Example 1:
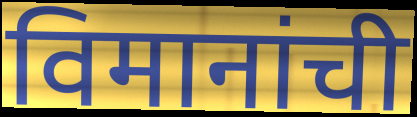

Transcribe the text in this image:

विमानांची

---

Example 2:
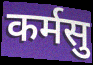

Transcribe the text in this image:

कर्मसु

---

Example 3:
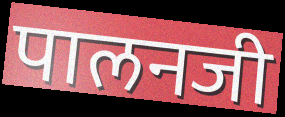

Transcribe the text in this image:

पालनजी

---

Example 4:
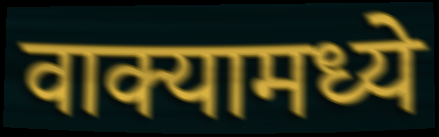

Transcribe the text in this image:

वाक्यामध्ये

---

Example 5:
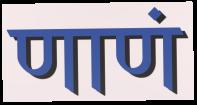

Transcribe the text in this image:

णाणं